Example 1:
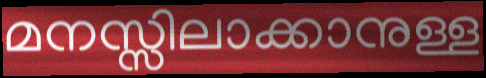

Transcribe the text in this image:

മനസ്സിലാക്കാനുള്ള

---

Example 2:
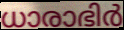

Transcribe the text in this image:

ധാരാഭിർ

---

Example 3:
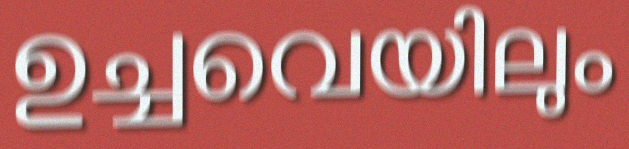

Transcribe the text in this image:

ഉച്ചവെയിലും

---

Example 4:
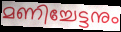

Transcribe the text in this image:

മണിച്ചേട്ടനും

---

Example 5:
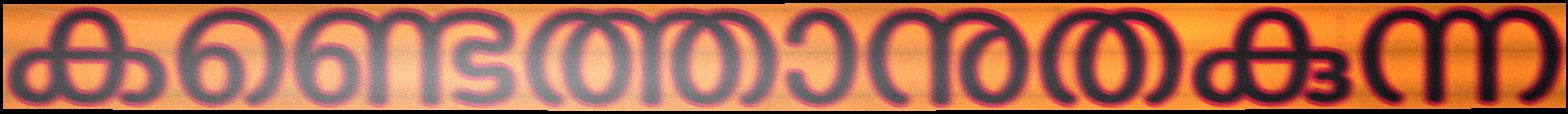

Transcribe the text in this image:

കണ്ടെത്താനുതകുന്ന